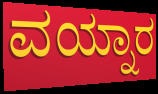
ವಯ್ನಾರ